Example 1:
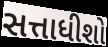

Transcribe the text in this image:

સત્તાધીશો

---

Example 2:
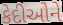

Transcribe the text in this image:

કેદીઓને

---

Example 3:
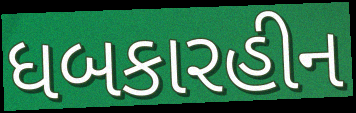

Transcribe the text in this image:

ધબકારહીન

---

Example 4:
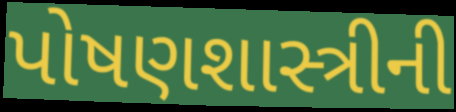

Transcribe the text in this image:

પોષણશાસ્ત્રીની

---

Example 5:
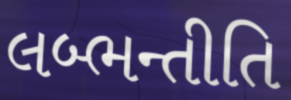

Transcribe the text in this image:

લબ્ભન્તીતિ